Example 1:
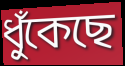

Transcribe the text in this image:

ধুঁকেছে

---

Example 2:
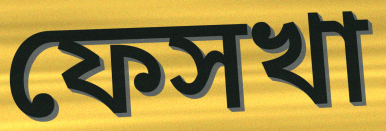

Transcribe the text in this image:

ফেসখা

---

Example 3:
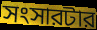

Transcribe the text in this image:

সংসারটার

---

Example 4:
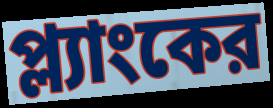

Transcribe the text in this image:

প্ল্যাংকের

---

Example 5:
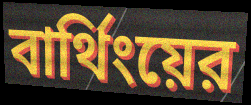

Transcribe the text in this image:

বার্থিংয়ের